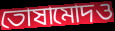
তোষামোদও